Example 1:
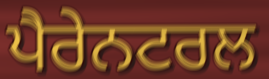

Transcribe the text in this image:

ਪੈਰੇਨਟਰਲ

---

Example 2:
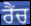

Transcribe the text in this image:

ਰੈਂਚ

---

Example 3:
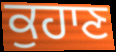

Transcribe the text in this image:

ਕੁਹਾਣ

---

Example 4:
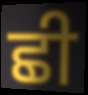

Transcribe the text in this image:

ਛੀ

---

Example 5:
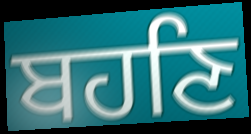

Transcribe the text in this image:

ਬਹਣਿ